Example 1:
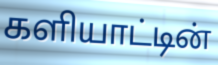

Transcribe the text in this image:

களியாட்டின்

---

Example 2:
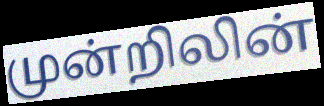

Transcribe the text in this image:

முன்றிலின்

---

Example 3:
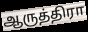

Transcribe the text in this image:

ஆருத்திரா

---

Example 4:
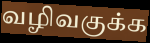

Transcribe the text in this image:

வழிவகுக்க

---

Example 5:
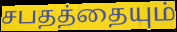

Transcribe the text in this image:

சபதத்தையும்